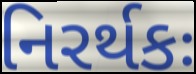
નિરર્થકઃ